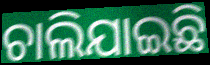
ଚାଲିଯାଇଛି